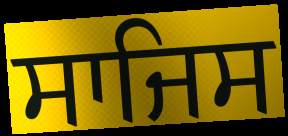
ਸਾਜਿਸ